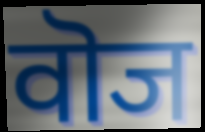
वॊज